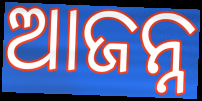
ଆଜନ୍ନ